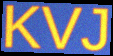
KVJ